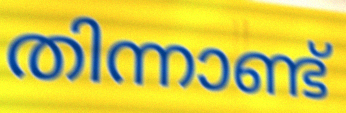
തിന്നാണ്ട്